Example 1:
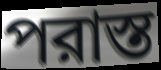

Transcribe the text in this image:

পরাস্ত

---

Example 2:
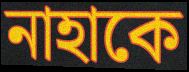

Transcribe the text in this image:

নাহাকে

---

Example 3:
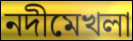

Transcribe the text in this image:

নদীমেখলা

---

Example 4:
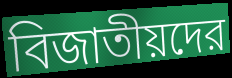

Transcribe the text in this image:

বিজাতীয়দের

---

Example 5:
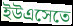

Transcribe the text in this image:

ইউএসেতে